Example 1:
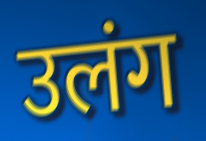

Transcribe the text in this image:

उलंग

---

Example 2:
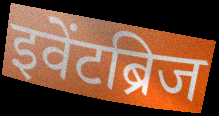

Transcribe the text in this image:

इवेंटब्रिज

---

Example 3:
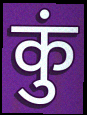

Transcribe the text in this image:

कुं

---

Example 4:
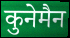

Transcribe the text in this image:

कुनेमैन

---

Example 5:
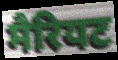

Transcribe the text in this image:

मैरियट